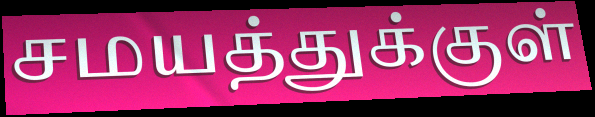
சமயத்துக்குள்